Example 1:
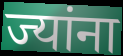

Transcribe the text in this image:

ज्यांना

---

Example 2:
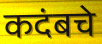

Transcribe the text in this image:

कदंबचे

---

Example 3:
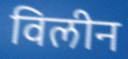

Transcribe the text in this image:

विलीन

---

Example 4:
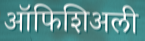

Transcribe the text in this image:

ऑफिशिअली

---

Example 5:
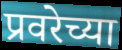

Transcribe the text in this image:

प्रवरेच्या